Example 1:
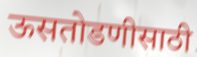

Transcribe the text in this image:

ऊसतोडणीसाठी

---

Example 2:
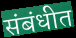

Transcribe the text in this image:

संबंधीत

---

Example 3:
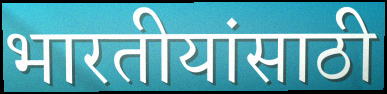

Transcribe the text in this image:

भारतीयांसाठी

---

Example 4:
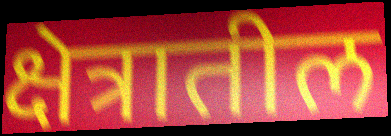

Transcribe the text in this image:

क्षेत्रातील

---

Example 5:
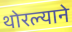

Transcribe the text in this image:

थोरल्याने